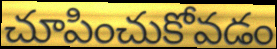
చూపించుకోవడం